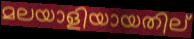
മലയാളിയായതില്